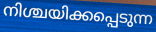
നിശ്ചയിക്കപ്പെടുന്ന